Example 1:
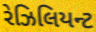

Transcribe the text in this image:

રેઝિલિયન્ટ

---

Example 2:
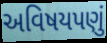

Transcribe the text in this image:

અવિષયપણું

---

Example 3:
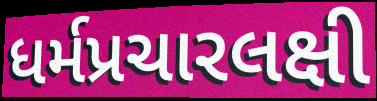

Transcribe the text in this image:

ધર્મપ્રચારલક્ષી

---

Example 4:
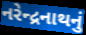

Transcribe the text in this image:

નરેન્દ્રનાથનું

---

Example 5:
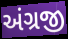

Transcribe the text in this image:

અંગ્રજી